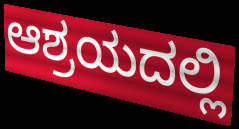
ಆಶ್ರಯದಲ್ಲಿ